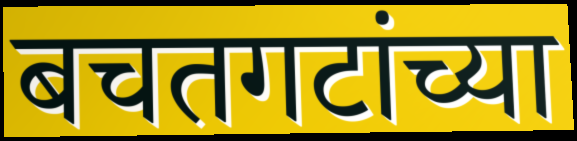
बचतगटांच्या